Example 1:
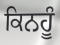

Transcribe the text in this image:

ਕਿਨਹੂੰ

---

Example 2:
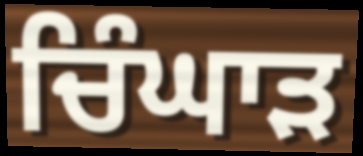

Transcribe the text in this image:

ਚਿੰਘਾੜ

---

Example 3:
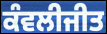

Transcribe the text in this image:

ਕੰਵਲੀਜੀਤ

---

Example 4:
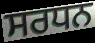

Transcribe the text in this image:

ਸਰਧਨ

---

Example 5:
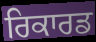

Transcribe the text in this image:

ਰਿਕਾਰਡ